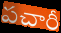
పచారీ